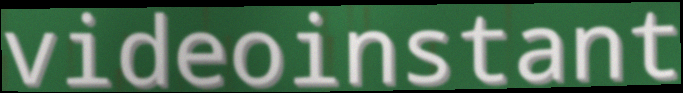
videoinstant